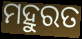
ମହୁରତ